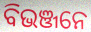
ବିଭଞ୍ଜନେ